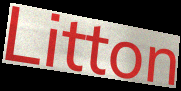
Litton